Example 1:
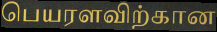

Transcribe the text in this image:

பெயரளவிற்கான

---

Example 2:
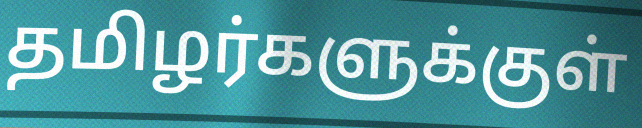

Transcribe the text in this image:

தமிழர்களுக்குள்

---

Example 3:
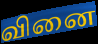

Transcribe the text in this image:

வினை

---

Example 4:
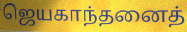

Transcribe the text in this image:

ஜெயகாந்தனைத்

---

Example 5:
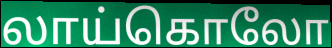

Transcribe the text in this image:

லாய்கொலோ